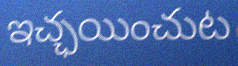
ఇచ్ఛయించుట